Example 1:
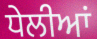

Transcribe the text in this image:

ਧੇਲੀਆਂ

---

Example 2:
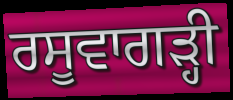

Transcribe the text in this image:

ਰਸੂਵਾਗੜ੍ਹੀ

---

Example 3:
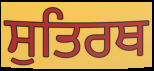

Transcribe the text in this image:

ਸੁਤਿਰਥ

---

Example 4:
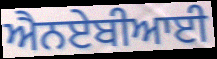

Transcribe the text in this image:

ਐਨਏਬੀਆਈ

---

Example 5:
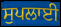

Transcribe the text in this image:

ਸੁਪਲਾਈ